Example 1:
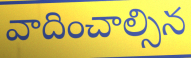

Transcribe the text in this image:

వాదించాల్సిన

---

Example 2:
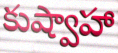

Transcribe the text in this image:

కుష్వాహా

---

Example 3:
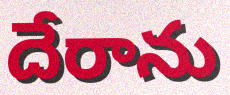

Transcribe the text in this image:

దేరాను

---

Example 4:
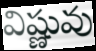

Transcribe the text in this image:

విష్ణువు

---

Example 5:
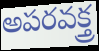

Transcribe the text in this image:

అపరవక్త్ర